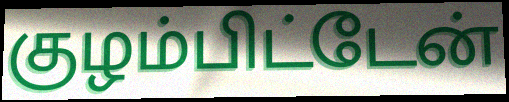
குழம்பிட்டேன்